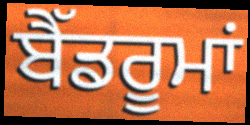
ਬੈੱਡਰੂਮਾਂ